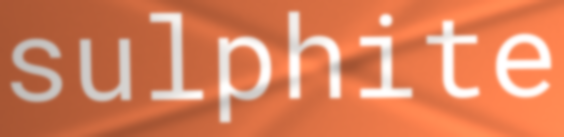
sulphite